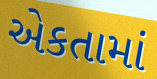
એકતામાં